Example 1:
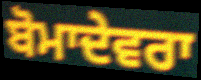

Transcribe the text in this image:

ਬੋਮਾਦੇਵਰਾ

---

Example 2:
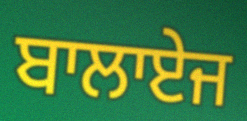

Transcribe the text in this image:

ਬਾਲਾਏਜ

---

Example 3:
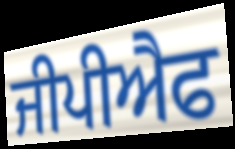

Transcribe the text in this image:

ਜੀਪੀਐਫ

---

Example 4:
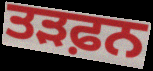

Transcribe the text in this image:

ਤੜਫ਼ਨ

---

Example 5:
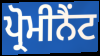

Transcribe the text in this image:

ਪ੍ਰੋਮੀਨੈਂਟ